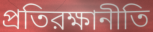
প্রতিরক্ষানীতি